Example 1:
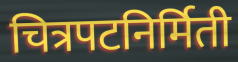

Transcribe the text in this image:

चित्रपटनिर्मिती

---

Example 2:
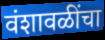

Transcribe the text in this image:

वंशावळींचा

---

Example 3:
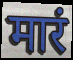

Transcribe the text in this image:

मारं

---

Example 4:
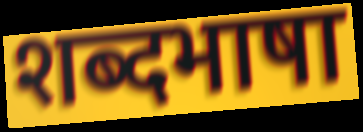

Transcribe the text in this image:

शब्दभाषा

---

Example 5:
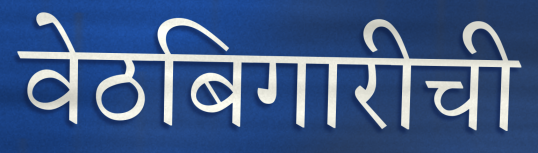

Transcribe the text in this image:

वेठबिगारीची